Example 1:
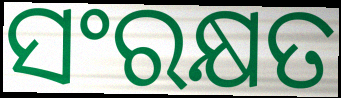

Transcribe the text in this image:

ସଂରକ୍ଷତ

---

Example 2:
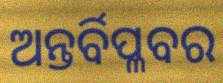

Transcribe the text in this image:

ଅନ୍ତର୍ବିପ୍ଳବର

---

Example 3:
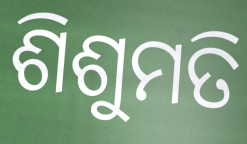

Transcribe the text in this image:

ଶିଶୁମତି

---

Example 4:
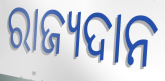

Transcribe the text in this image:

ରାଜ୍ୟଦାନ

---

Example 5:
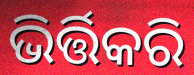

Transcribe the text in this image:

ଭିର୍ତ୍ତିକରି